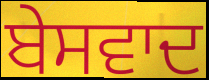
ਬੇਸਵਾਦ